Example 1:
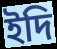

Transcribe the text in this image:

ইদি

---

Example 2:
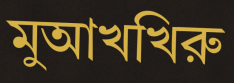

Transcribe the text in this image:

মুআখখিরু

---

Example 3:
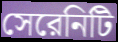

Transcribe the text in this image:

সেরেনিটি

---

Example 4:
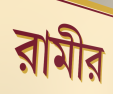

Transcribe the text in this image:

রামীর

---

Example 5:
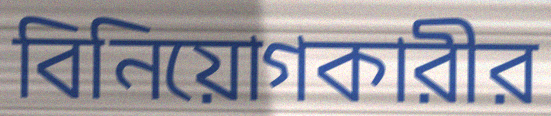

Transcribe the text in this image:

বিনিয়োগকারীর